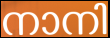
നാനി